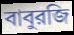
বাবুরজি